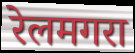
रेलमगरा